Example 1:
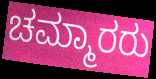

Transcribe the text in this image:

ಚಮ್ಮಾರರು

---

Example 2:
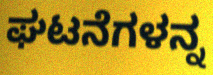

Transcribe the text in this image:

ಘಟನೆಗಳನ್ನ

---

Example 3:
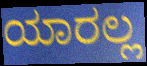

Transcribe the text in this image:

ಯಾರಲ್ಲ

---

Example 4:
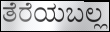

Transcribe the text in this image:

ತೆರೆಯಬಲ್ಲ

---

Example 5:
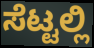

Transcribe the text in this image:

ಸೆಟ್ಟಲ್ಲಿ